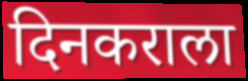
दिनकराला